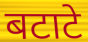
बटाटे